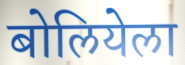
बोलियेला